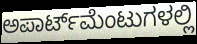
ಅಪಾರ್ಟ್‌ಮೆಂಟುಗಳಲ್ಲಿ